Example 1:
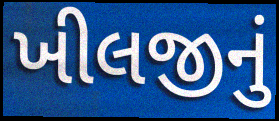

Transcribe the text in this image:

ખીલજીનું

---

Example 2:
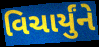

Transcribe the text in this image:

વિચાર્યુંને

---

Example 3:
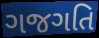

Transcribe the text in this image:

ગજગતિ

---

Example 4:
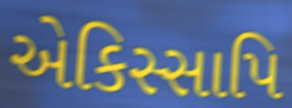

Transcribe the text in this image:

એકિસ્સાપિ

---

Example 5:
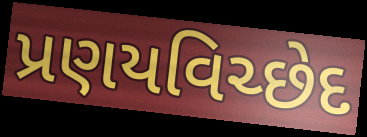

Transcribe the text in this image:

પ્રણયવિચ્છેદ